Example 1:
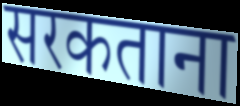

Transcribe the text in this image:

सरकताना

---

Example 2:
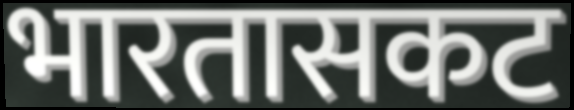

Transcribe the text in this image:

भारतासकट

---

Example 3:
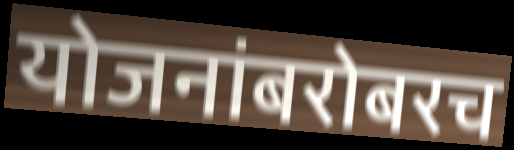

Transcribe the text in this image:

योजनांबरोबरच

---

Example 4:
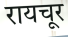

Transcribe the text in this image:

रायचूर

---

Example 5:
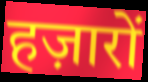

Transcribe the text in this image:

हज़ारों